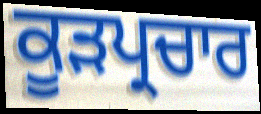
ਕੂੜਪ੍ਰਚਾਰ